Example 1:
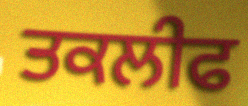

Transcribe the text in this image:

ਤਕਲੀਫ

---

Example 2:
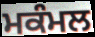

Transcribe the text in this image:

ਮਕੰਮਲ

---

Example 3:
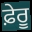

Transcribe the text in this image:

ਫ਼ੇਰੂ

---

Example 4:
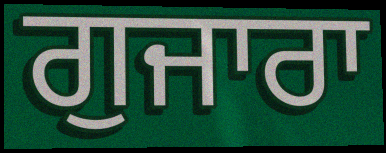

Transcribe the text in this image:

ਗੁਜਾਰਾ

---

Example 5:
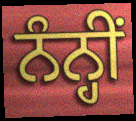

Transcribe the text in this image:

ਨੰਨ੍ਹੀਂ